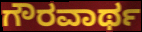
ಗೌರವಾರ್ಥ